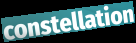
constellation